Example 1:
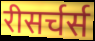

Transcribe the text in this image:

रीसर्चर्स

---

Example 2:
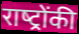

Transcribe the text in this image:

राष्ट्रोंकी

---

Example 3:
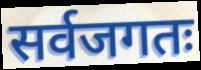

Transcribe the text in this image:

सर्वजगतः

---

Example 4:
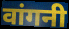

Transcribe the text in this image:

वांगनी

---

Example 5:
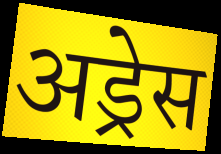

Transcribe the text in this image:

अड्रेस